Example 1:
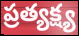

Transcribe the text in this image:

ప్రత్యక్ష్య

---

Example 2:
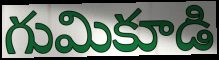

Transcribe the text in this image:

గుమికూడి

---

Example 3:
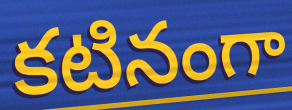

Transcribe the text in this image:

కటినంగా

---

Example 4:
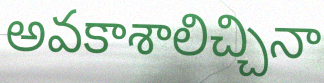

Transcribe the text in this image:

అవకాశాలిచ్చినా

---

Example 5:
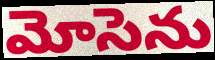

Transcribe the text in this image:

మోసెను